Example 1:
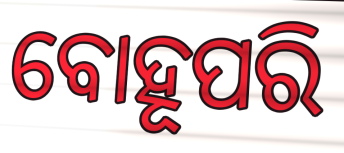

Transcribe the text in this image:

ବୋହୂପରି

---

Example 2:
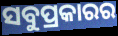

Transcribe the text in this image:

ସବୁପ୍ରକାରର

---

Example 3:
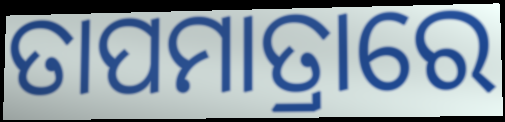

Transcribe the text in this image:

ତାପମାତ୍ରାରେ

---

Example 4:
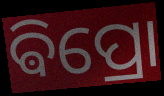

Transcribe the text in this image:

ଵିପ୍ରୋ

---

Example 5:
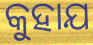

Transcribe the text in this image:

କୁହାଯ